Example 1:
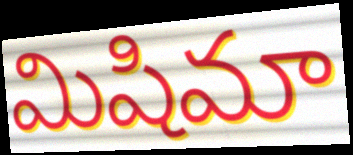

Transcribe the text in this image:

మిషిమా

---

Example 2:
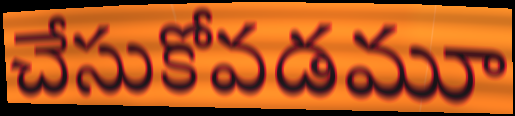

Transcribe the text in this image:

చేసుకోవడమూ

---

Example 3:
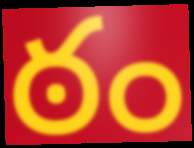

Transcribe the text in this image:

ఠం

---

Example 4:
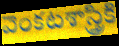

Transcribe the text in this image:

వెంకటశాస్త్రికి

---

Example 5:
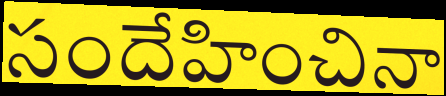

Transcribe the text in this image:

సందేహించినా